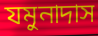
যমুনাদাস